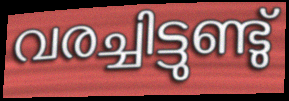
വരച്ചിട്ടുണ്ടു്